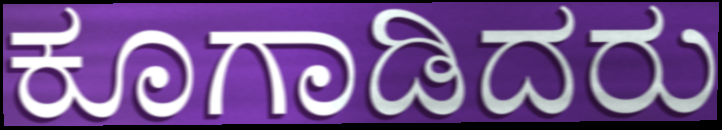
ಕೂಗಾಡಿದರು